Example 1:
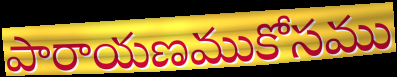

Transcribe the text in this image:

పారాయణముకోసము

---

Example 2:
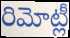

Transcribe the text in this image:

రిమోట్లీ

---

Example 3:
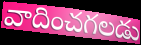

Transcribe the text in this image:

వాదించగలడు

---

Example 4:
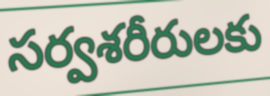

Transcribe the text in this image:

సర్వశరీరులకు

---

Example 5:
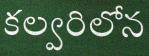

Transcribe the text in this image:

కల్వరిలోన